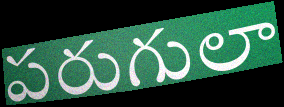
పరుగులా